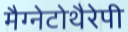
मैग्नेटोथैरेपी